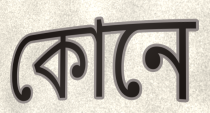
কোনে